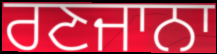
ਰਣਜਾਨਾ